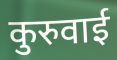
कुरुवाई